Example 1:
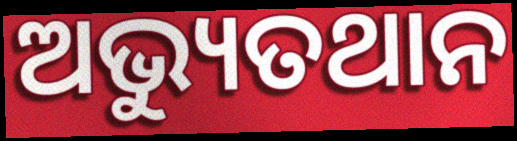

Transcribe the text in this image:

ଅଭ୍ୟୁତଥାନ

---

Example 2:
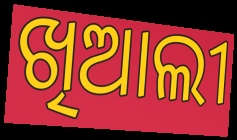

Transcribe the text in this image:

ଖିଆଲୀ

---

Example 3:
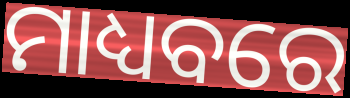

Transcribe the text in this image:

ମାଧ୍ୟବରେ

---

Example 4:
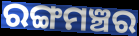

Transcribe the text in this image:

ରଙ୍ଗମଞ୍ଚର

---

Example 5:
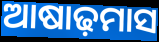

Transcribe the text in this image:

ଆଷାଢ଼ମାସ